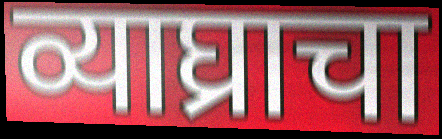
व्याघ्राचा